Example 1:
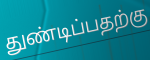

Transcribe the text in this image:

துண்டிப்பதற்கு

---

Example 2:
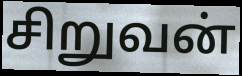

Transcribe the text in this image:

சிறுவன்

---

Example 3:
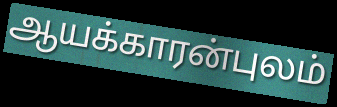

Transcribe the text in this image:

ஆயக்காரன்புலம்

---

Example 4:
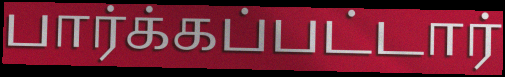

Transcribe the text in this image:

பார்க்கப்பட்டார்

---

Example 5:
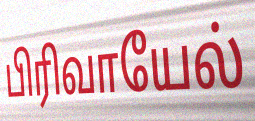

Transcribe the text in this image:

பிரிவாயேல்